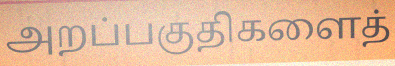
அறப்பகுதிகளைத்